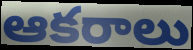
ఆకరాలు